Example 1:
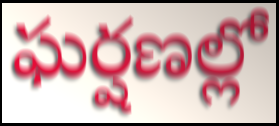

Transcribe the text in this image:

ఘర్షణల్లో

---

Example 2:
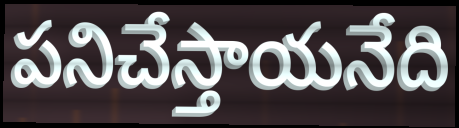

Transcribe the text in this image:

పనిచేస్తాయనేది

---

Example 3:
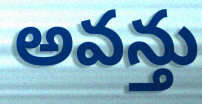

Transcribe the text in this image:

అవన్తు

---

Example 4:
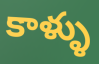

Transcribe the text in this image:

కాళ్ళు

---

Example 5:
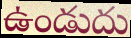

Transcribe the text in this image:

ఉండుదు